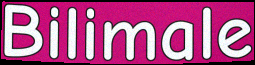
Bilimale